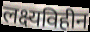
लक्ष्यविहीन